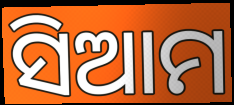
ସିଆମ